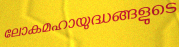
ലോകമഹായുദ്ധങ്ങളുടെ